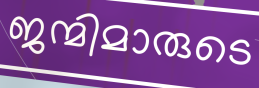
ജന്മിമാരുടെ